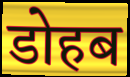
डोहब